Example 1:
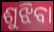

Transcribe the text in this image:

ଶୁଝିବା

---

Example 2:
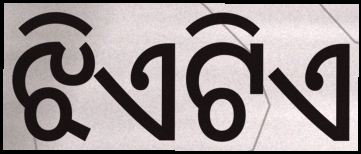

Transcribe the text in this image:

ଝିଏଟିଏ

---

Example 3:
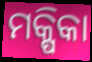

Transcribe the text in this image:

ମକ୍ଷିକା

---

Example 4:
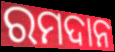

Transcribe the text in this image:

ରମଦାନ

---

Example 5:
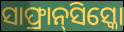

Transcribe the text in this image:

ସାଫ୍ରାନ୍‌ସିସ୍କୋ